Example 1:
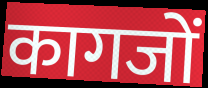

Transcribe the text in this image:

कागजों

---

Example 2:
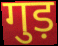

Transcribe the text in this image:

गुड़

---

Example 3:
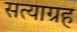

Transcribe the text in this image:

सत्याग्रह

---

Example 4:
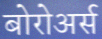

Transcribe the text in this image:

बोरोअर्स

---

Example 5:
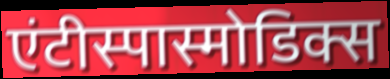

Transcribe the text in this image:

एंटीस्पास्मोडिक्स